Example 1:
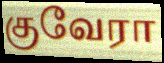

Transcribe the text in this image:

குவேரா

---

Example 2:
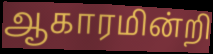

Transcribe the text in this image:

ஆகாரமின்றி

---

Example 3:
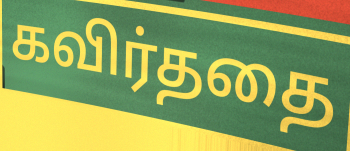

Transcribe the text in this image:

கவிர்ததை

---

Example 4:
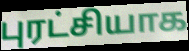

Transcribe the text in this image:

புரட்சியாக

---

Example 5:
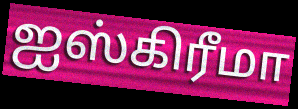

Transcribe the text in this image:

ஐஸ்கிரீமா